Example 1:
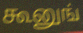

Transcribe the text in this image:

கூனுங்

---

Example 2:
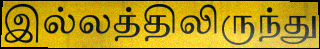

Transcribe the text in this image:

இல்லத்திலிருந்து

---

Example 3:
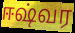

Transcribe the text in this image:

ஈஷ்வர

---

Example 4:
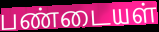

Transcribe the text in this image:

பண்டையள்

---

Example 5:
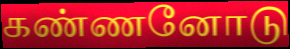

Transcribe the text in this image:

கண்ணனோடு